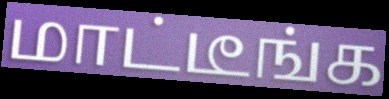
மாட்டீங்க